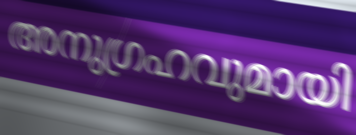
അനുഗ്രഹവുമായി